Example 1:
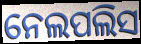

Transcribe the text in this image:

ନେଲପଲିସ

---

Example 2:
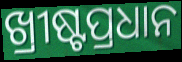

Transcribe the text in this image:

ଖ୍ରୀଷ୍ଟପ୍ରଧାନ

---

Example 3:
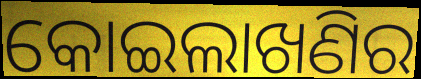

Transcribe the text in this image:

କୋଇଲାଖଣିର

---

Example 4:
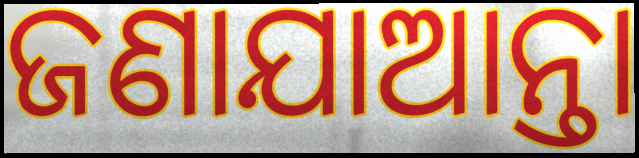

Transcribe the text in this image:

ଜଣାଯାଆନ୍ତା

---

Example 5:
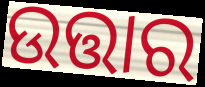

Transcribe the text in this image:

ଉତ୍ତାର